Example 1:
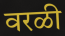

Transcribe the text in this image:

वरळी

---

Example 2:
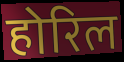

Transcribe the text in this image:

होरिल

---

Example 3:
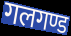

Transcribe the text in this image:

गलगण्ड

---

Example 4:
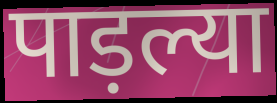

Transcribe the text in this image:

पाड़ल्या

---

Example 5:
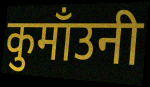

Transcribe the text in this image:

कुमाँउनी